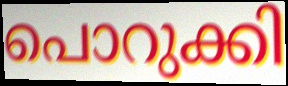
പൊറുക്കി